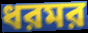
ধরমর